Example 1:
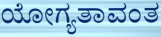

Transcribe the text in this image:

ಯೋಗ್ಯತಾವಂತ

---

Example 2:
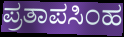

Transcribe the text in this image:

ಪ್ರತಾಪಸಿಂಹ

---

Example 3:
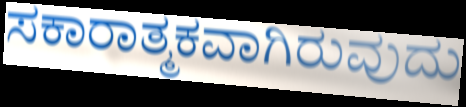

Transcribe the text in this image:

ಸಕಾರಾತ್ಮಕವಾಗಿರುವುದು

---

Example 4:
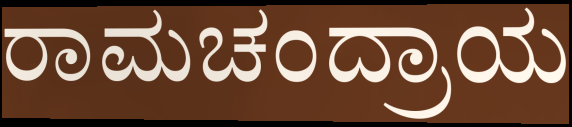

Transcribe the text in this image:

ರಾಮಚಂದ್ರಾಯ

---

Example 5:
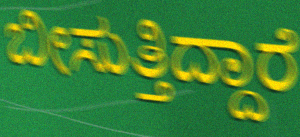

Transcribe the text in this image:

ಬೀಸುತ್ತಿದ್ದಾರೆ